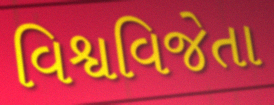
વિશ્વવિજેતા